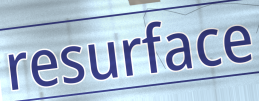
resurface